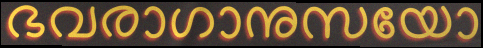
ഭവരാഗാനുസയോ